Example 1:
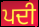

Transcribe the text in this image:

ਪਦੀ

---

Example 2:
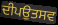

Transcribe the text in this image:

ਦੀਪਉਤਸਵ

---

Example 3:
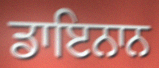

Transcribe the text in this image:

ਡਾਇਨਾਨ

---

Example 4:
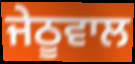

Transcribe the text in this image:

ਜੇਠੂਵਾਲ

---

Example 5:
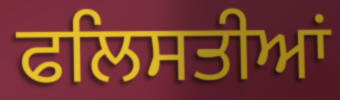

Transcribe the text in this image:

ਫਲਿਸਤੀਆਂ